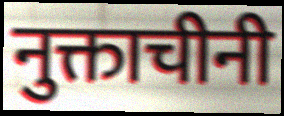
नुक्ताचीनी